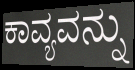
ಕಾವ್ಯವನ್ನು